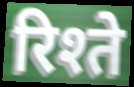
रिश्ते